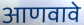
आणवावे